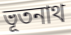
ভূতনাথ